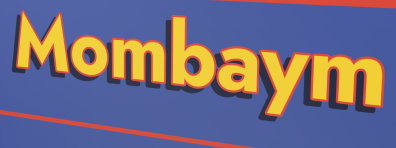
Mombaym